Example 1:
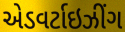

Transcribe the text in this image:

એડવર્ટાઇઝીંગ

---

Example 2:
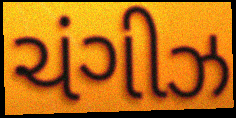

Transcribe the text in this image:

ચંગીઝ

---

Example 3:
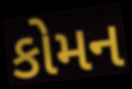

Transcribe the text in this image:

કોમન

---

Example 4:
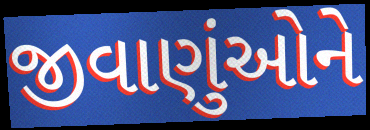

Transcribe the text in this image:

જીવાણુંઓને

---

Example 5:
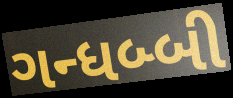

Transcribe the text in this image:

ગન્ધબ્બી